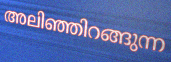
അലിഞ്ഞിറങ്ങുന്ന